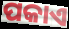
ପକାଏ